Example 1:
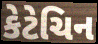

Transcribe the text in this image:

કેટેચિન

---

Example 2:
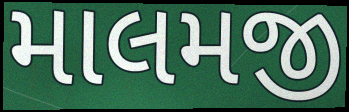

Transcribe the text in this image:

માલમજી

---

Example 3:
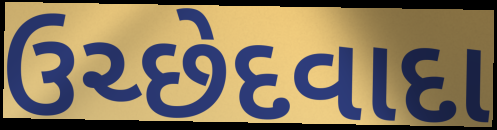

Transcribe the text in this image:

ઉચ્છેદવાદા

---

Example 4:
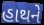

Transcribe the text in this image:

હાથને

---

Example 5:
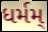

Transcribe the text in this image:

ધર્મમ્